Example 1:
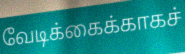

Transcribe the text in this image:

வேடிக்கைக்காகச்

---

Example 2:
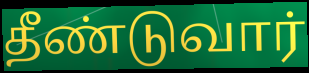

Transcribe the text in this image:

தீண்டுவார்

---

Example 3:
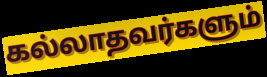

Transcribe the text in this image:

கல்லாதவர்களும்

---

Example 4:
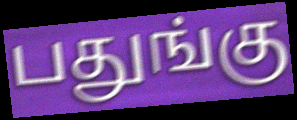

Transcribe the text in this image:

பதுங்கு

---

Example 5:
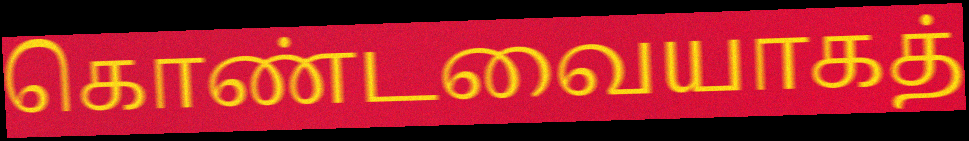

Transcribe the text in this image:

கொண்டவையாகத்